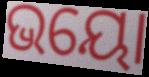
ଭୟୋ